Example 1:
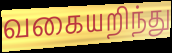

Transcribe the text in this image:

வகையறிந்து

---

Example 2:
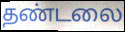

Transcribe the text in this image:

தண்டலை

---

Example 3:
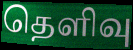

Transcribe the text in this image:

தெளிவு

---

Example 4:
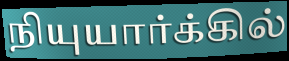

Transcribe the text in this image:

நியுயார்க்கில்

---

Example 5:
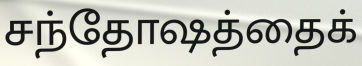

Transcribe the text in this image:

சந்தோஷத்தைக்